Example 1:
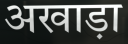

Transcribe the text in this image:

अखाड़ा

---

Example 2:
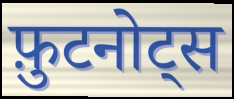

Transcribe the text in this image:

फ़ुटनोट्स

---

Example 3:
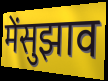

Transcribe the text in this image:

मेंसुझाव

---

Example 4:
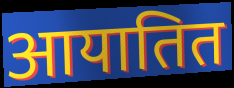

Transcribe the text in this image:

आयातित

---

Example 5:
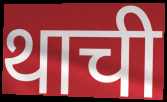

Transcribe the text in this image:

थाची